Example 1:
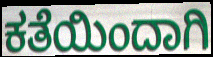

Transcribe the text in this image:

ಕತೆಯಿಂದಾಗಿ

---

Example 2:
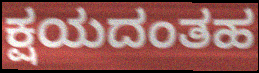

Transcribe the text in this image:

ಕ್ಷಯದಂತಹ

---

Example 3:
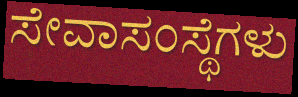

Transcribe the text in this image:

ಸೇವಾಸಂಸ್ಥೆಗಳು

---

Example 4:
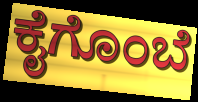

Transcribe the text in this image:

ಕೈಗೊಂಬೆ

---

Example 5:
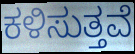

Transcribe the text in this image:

ಕಳಿಸುತ್ತವೆ